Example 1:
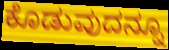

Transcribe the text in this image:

ಕೊಡುವುದನ್ನೂ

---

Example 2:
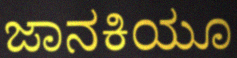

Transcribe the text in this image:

ಜಾನಕಿಯೂ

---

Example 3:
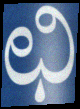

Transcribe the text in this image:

ಛಿ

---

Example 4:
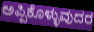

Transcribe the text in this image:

ಅಪ್ಪಿಕೊಳ್ಳುವುದರ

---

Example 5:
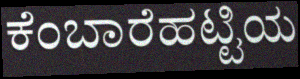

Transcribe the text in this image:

ಕೆಂಬಾರೆಹಟ್ಟಿಯ